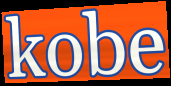
kobe